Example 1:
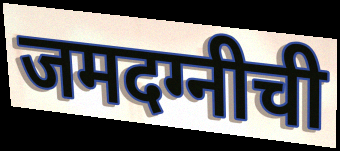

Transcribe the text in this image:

जमदग्नीची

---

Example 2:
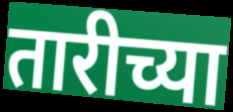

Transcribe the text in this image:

तारीच्या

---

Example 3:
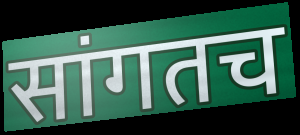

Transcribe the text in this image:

सांगतच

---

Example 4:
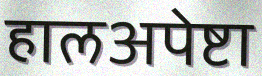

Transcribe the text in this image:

हालअपेष्टा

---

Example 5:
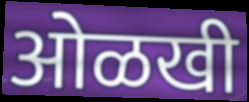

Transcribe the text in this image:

ओळखी